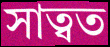
সাত্বত